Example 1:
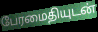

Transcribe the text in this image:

பேரமைதியுடன்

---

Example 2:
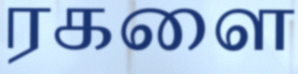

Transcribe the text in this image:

ரகளை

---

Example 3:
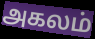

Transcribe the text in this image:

அகலம்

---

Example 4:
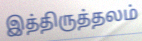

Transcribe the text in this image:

இத்திருத்தலம்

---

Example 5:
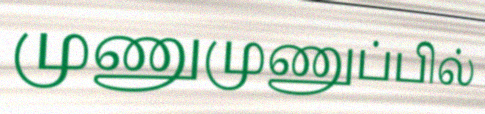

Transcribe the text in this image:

முணுமுணுப்பில்